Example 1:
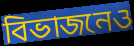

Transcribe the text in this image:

বিভাজনেও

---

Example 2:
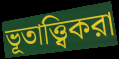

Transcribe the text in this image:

ভূতাত্ত্বিকরা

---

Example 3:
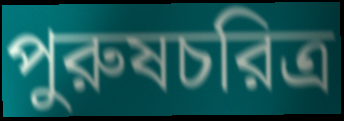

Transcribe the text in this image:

পুরুষচরিত্র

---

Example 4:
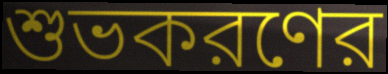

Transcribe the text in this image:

শুভকরণের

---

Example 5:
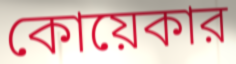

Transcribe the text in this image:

কোয়েকার